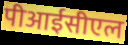
पीआईसीएल